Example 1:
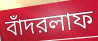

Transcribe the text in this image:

বাঁদরলাফ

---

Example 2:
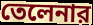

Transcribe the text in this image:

তেলেনার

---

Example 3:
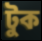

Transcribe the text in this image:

টুক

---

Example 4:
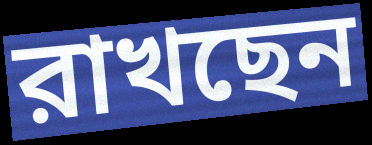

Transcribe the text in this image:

রাখছেন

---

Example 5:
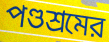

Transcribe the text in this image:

পণ্ডশ্রমের